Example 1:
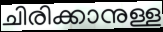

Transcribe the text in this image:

ചിരിക്കാനുള്ള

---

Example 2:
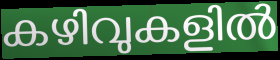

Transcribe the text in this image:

കഴിവുകളിൽ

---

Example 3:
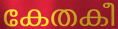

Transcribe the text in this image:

കേതകീ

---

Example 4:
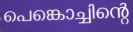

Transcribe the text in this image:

പെങ്കൊച്ചിന്റെ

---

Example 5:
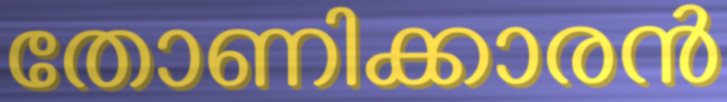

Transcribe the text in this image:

തോണിക്കാരൻ